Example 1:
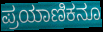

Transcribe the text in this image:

ಪ್ರಯಾಣಿಕನೂ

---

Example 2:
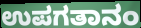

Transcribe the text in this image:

ಉಪಗತಾನಂ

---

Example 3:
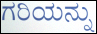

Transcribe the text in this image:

ಗರಿಯನ್ನು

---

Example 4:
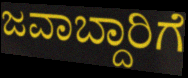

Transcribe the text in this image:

ಜವಾಬ್ದಾರಿಗೆ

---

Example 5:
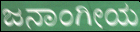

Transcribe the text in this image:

ಜನಾಂಗೀಯ